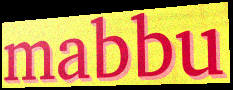
mabbu